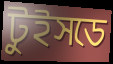
টুইসডে